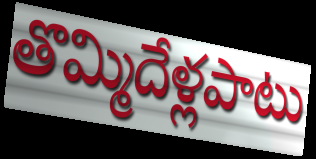
తొమ్మిదేళ్లపాటు